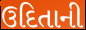
ઉદિતાની